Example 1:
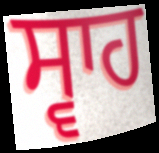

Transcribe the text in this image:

ਸ੍ਵਾਹ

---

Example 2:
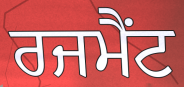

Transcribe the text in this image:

ਰਜਮੈਂਟ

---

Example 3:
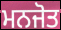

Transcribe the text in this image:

ਮਨਜੋਤ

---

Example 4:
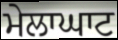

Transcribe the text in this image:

ਮੇਲਾਘਾਟ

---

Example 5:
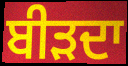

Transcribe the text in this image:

ਬੀੜਦਾ